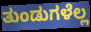
ತುಂಡುಗಳೆಲ್ಲ